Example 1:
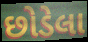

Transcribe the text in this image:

છોડેલા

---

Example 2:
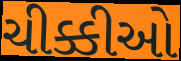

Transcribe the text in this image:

ચીક્કીઓ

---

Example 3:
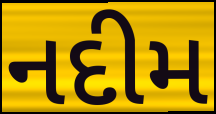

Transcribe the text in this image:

નદીમ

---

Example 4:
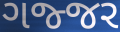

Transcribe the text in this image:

ગજ્જર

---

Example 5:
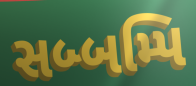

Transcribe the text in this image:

સબ્બમ્પિ